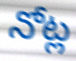
నోట్ల